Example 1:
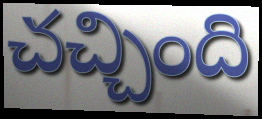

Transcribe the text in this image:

చచ్చింది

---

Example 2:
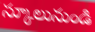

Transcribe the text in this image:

స్కూలునుండి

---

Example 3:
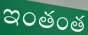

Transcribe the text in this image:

ఇంతంత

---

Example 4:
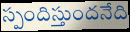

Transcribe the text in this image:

స్పందిస్తుందనేది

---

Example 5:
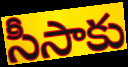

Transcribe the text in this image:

సీసాకు